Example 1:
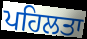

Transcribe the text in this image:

ਪਹਿਲਤਾ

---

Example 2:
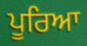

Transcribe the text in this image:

ਪੂਰਿਆ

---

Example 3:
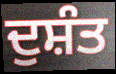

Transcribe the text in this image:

ਦੁਸ਼ੰਤ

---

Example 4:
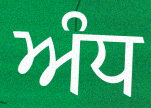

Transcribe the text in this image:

ਅੰਧ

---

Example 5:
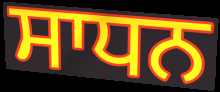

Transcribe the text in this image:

ਸਾਧਨ